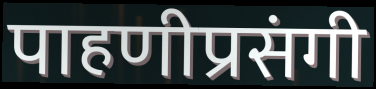
पाहणीप्रसंगी